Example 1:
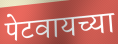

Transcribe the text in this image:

पेटवायच्या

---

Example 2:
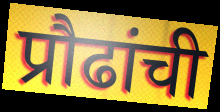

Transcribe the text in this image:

प्रौढांची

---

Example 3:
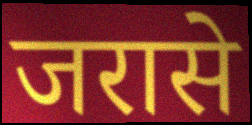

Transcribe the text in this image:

जरासे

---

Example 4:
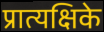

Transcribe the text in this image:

प्रात्यक्षिके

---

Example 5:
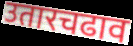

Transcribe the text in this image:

उतारचढाव